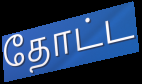
தோட்ட